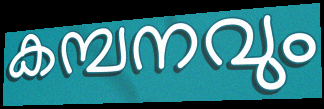
കമ്പനവും